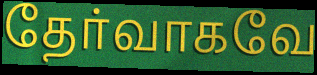
தேர்வாகவே